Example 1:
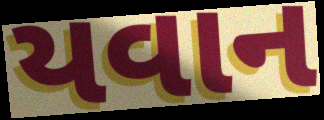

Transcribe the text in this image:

યવાન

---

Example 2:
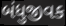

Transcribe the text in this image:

બંધુજીવક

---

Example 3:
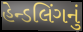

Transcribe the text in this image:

હેન્ડલિંગનું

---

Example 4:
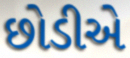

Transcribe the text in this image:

છોડીએ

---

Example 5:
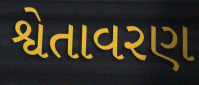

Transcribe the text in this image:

શ્વેતાવરણ